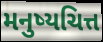
મનુષ્યચિત્ત